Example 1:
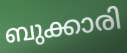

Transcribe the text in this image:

ബുക്കാരി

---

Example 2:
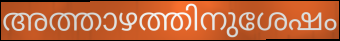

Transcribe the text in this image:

അത്താഴത്തിനുശേഷം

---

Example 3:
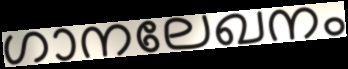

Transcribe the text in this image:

ഗാനലേഖനം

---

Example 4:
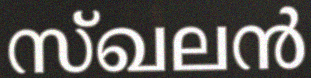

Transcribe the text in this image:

സ്ഖലൻ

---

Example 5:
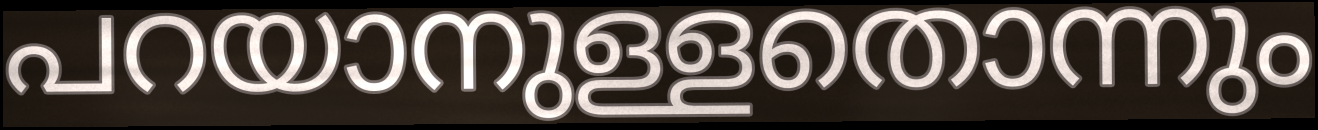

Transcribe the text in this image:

പറയാനുള്ളതൊന്നും